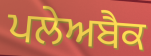
ਪਲੇਅਬੈਕ